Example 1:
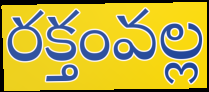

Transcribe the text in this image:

రక్తంవల్ల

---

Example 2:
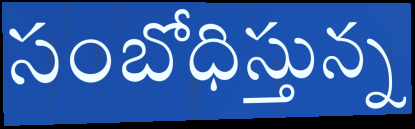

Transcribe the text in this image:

సంబోధిస్తున్న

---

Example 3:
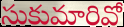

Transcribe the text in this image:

సుకుమారివో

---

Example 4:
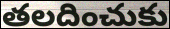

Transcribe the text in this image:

తలదించుకు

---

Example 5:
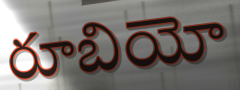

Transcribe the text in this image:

రూబియో